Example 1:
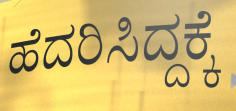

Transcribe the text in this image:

ಹೆದರಿಸಿದ್ದಕ್ಕೆ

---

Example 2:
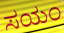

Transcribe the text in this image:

ಸಯಂ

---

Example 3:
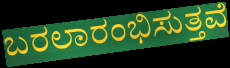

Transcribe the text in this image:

ಬರಲಾರಂಭಿಸುತ್ತವೆ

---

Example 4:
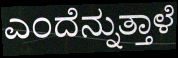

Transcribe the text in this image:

ಎಂದೆನ್ನುತ್ತಾಳೆ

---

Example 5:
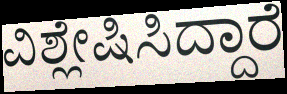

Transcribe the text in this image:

ವಿಶ್ಲೇಷಿಸಿದ್ದಾರೆ